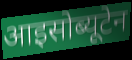
आइसोब्यूटेन